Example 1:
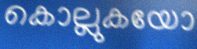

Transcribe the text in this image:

കൊല്ലുകയോ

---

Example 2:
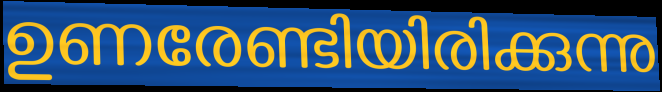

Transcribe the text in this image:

ഉണരേണ്ടിയിരിക്കുന്നു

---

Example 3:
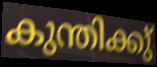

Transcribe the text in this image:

കുന്തിക്കു്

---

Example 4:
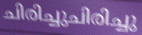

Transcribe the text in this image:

ചിരിച്ചുചിരിച്ചു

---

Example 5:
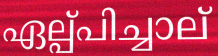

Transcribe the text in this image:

ഏല്പ്പിച്ചാല്